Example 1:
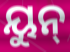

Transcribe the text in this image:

ୟୁନ୍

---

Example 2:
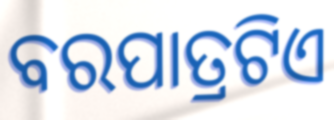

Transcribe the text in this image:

ବରପାତ୍ରଟିଏ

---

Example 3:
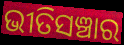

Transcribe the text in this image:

ଭୀତିସଞ୍ଚାର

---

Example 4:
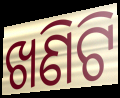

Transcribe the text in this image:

ଖଣିଟି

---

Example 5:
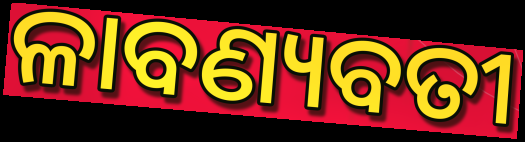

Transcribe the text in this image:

ଳାବଣ୍ୟବତୀ